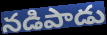
నడిపాడు